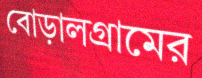
বোড়ালগ্রামের